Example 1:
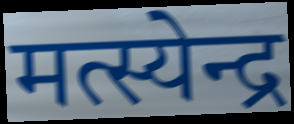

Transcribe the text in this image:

मत्स्येन्द्र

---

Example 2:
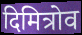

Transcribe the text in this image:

दिमित्रोव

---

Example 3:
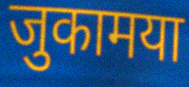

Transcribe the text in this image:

जुकामया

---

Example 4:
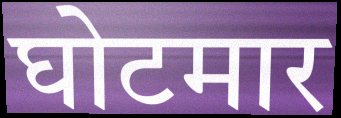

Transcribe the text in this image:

घोटमार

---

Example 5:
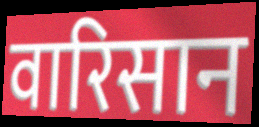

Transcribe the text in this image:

वारिसान